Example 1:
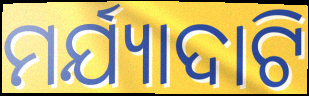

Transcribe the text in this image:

ମର୍ଯ୍ୟାଦାଟି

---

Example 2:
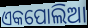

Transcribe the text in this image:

ଏକପୋଲିଆ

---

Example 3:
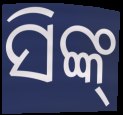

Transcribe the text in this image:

ସିଙ୍କ୍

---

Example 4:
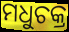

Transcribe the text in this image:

ମଧୁଚକ୍ର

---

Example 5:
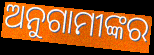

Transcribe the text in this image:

ଅନୁଗାମୀଙ୍କର